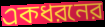
একধরনের